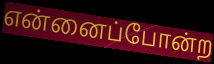
என்னைப்போன்ற